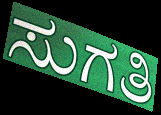
ಸುಗತಿ